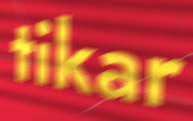
tikar